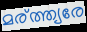
മര്ത്ത്യരേ